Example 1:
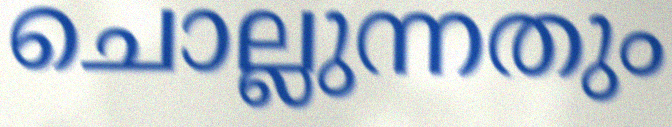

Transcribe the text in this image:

ചൊല്ലുന്നതും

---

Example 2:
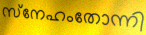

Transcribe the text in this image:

സ്‌നേഹംതോന്നി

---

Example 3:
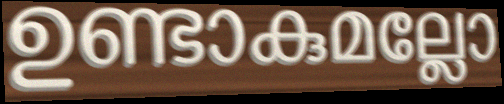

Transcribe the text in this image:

ഉണ്ടാകുമല്ലോ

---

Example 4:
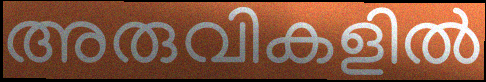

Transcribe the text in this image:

അരുവികളിൽ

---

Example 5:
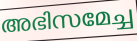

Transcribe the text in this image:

അഭിസമേച്ച